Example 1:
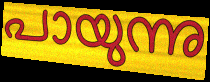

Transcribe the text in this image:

പായുന്നു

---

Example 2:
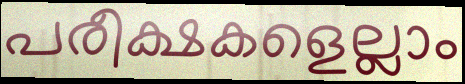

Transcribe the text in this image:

പരീക്ഷകളെല്ലാം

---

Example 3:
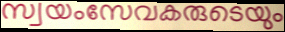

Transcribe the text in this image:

സ്വയംസേവകരുടെയും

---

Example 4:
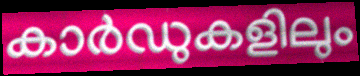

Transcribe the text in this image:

കാർഡുകളിലും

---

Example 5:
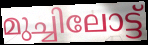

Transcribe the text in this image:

മുച്ചിലോട്ട്